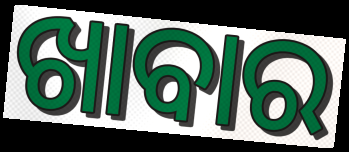
ଖାବାର